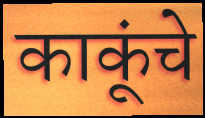
काकूंचे